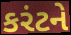
કરંટને